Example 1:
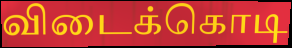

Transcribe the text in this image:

விடைக்கொடி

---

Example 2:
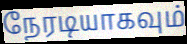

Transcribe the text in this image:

நேரடியாகவும்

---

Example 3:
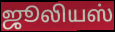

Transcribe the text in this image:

ஜூலியஸ்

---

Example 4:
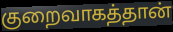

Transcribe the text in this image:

குறைவாகத்தான்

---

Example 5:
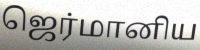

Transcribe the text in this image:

ஜெர்மானிய